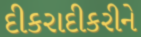
દીકરાદીકરીને